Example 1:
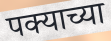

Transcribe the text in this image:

पक्याच्या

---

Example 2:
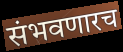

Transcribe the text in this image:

संभवणारच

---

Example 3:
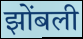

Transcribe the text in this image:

झोंबली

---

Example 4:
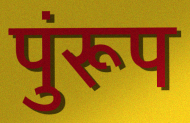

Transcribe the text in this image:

पुंरूप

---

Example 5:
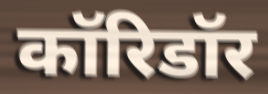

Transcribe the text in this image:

कॉरिडॉर